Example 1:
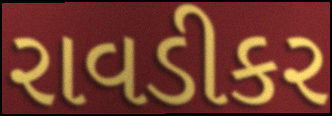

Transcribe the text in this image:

રાવડીકર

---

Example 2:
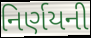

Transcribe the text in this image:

નિર્ણયની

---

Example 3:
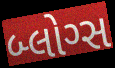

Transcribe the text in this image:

બ્લોગ્સ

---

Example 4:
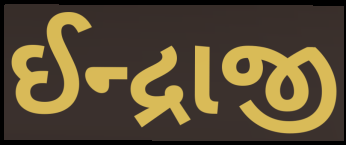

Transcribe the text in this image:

ઈન્દ્રાજી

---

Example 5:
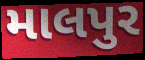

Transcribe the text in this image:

માલપુર